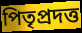
পিতৃপ্রদত্ত